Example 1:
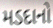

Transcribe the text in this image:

મડદાનો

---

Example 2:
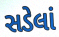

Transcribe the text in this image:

સડેલાં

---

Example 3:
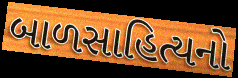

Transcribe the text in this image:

બાળસાહિત્યનો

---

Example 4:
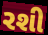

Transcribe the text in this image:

રશી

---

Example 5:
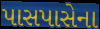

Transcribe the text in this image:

પાસપાસેના